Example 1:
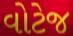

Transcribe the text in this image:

વોટેજ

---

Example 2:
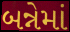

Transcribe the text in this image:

બન્નેમાં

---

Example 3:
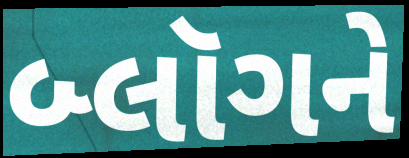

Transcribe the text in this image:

બ્લૉગને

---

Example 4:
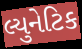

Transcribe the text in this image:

લ્યુનેટિક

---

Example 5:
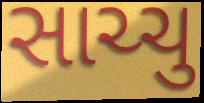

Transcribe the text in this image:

સાચ્ચુ